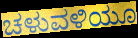
ಚಳುವಳಿಯೂ